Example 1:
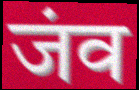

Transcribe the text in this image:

जंव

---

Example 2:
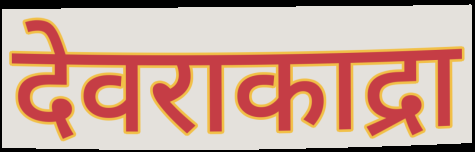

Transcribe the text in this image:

देवराकाद्रा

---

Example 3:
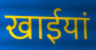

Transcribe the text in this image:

खाईयां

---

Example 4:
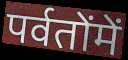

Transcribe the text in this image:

पर्वतोंमें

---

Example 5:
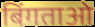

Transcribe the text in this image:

बिंगताओ